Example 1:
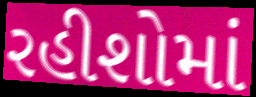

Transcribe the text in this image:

રહીશોમાં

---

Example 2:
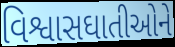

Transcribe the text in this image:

વિશ્વાસઘાતીઓને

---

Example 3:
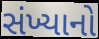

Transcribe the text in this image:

સંખ્યાનો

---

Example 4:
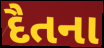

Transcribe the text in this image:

દૈતના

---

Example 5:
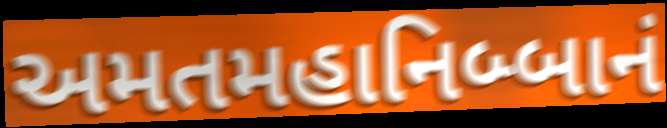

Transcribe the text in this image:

અમતમહાનિબ્બાનં